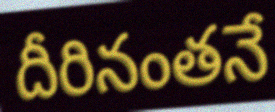
దీరినంతనే